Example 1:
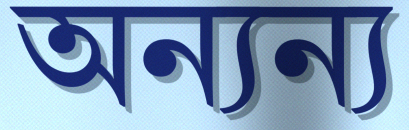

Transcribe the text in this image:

অন্যন্য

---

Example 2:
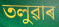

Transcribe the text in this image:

তলুৱাৰ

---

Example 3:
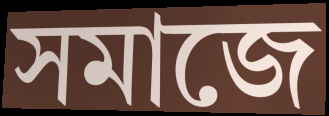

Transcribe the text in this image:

সমাজে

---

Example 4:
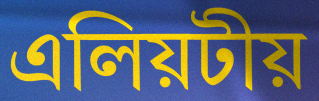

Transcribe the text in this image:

এলিয়টীয়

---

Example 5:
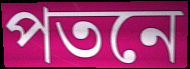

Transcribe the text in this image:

পতনে